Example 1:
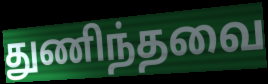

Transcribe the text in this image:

துணிந்தவை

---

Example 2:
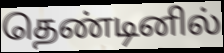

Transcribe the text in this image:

தெண்டினில்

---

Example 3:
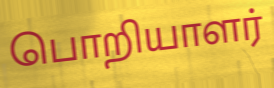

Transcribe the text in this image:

பொறியாளர்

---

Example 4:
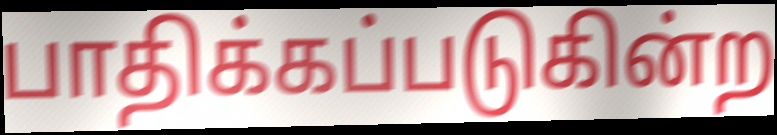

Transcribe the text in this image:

பாதிக்கப்படுகின்ற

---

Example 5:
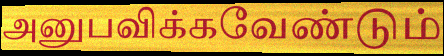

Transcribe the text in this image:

அனுபவிக்கவேண்டும்